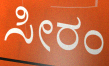
ಸೀರಂ